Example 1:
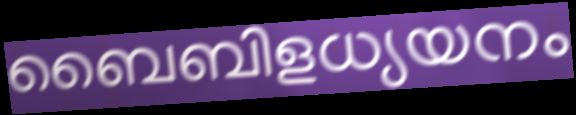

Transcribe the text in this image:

ബൈബിളധ്യയനം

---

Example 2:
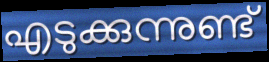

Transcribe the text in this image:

എടുക്കുന്നുണ്ട്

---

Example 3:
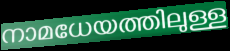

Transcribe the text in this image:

നാമധേയത്തിലുള്ള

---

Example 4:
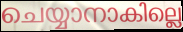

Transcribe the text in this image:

ചെയ്യാനാകില്ലെ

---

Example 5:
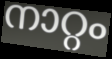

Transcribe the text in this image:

നാറ്റം